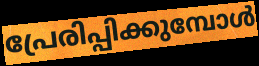
പ്രേരിപ്പിക്കുമ്പോൾ